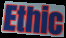
Ethic